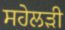
ਸਹੇਲੜੀ